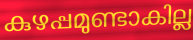
കുഴപ്പമുണ്ടാകില്ല